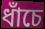
ধাঁচে